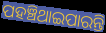
ପହଞ୍ଚିଥାଇପାରନ୍ତି